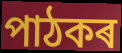
পাঠকৰ